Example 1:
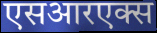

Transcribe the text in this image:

एसआरएक्स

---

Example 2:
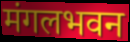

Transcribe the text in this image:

मंगलभवन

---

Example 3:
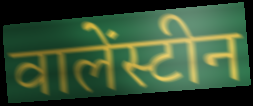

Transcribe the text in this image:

वालेंस्टीन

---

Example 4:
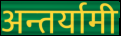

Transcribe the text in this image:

अन्तर्यामी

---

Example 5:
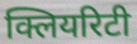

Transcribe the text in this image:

क्लियरिटी